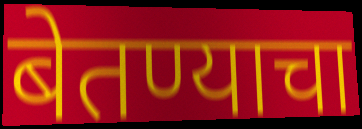
बेतण्याचा